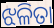
ଝଳିତା